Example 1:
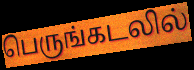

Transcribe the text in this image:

பெருங்கடலில்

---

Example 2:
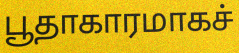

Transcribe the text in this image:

பூதாகாரமாகச்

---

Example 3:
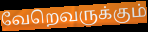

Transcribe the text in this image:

வேறெவருக்கும்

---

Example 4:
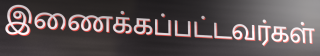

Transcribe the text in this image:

இணைக்கப்பட்டவர்கள்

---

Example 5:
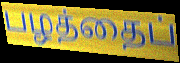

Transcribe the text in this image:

பழத்தைப்